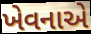
ખેવનાએ